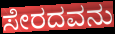
ಸೇರದವನು